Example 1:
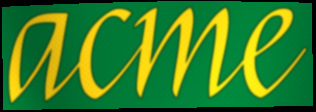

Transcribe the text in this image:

acme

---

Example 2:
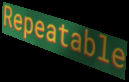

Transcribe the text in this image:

Repeatable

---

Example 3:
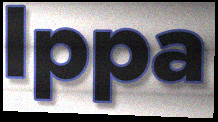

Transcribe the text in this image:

Ippa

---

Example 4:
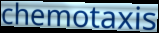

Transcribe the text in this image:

chemotaxis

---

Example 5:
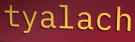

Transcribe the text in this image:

tyalach